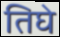
तिघे